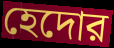
হেদোর